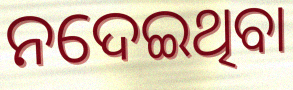
ନଦେଇଥିବା